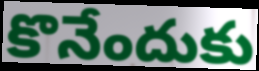
కొనేందుకు